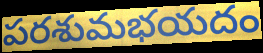
పరశుమభయదం